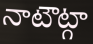
నాటౌట్గా